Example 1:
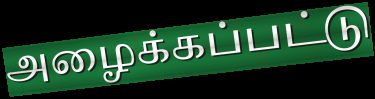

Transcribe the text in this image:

அழைக்கப்பட்டு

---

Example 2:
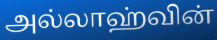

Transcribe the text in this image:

அல்லாஹ்வின்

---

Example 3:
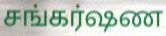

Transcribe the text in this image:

சங்கர்ஷண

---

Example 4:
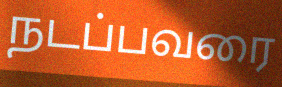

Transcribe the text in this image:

நடப்பவரை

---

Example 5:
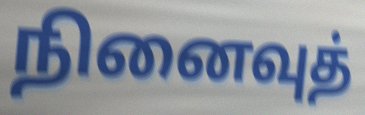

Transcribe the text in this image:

நினைவுத்